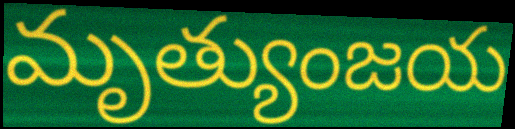
మృత్యుంజయ